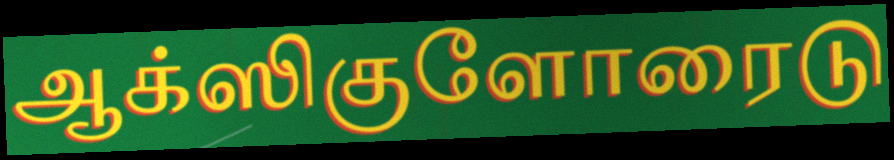
ஆக்ஸிகுளோரைடு